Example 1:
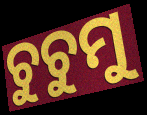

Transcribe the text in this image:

ଚୁଚୁମୁ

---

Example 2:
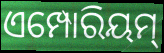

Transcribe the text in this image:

ଏମ୍ପୋରିୟମ୍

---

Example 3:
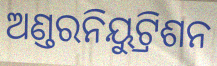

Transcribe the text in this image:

ଅଣ୍ଡରନିୟୁଟ୍ରିଶନ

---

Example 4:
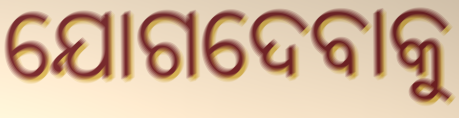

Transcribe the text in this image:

ଯୋଗଦେବାକୁ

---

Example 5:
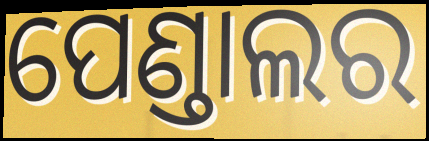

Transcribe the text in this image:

ପେଣ୍ଡାଲର